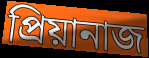
প্রিয়ানাজ